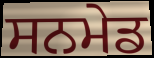
ਸਨਮੇਡ